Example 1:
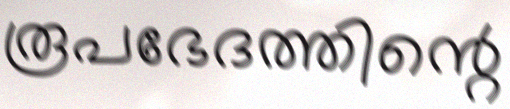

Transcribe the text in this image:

രൂപഭേദത്തിന്റെ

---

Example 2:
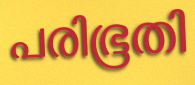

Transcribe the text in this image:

പരിഭൂതി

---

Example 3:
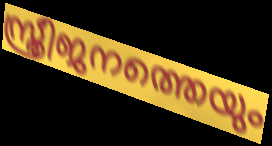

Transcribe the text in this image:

സ്ത്രീജനത്തെയും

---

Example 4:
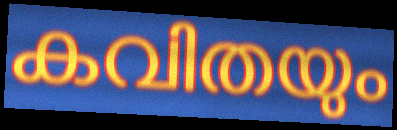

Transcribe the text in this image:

കവിതയും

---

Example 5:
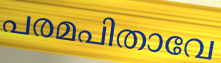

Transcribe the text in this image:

പരമപിതാവേ